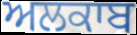
ਅਲਕਾਬ